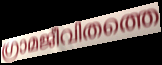
ഗ്രാമജീവിതത്തെ